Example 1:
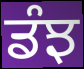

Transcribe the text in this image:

ਡੰਝ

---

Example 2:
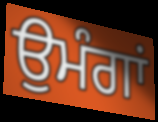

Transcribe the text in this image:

ਉਮੰਗਾਂ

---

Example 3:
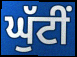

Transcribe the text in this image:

ਘੁੱਟੀਂ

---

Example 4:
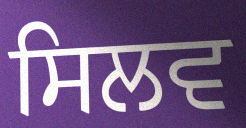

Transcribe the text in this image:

ਸਿਲਵ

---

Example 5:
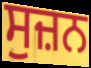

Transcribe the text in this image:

ਸੁਜ਼ਨ